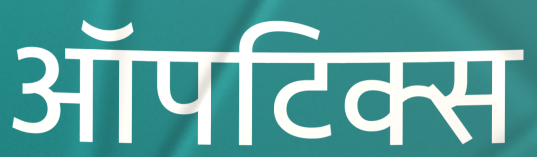
ऑपटिक्स